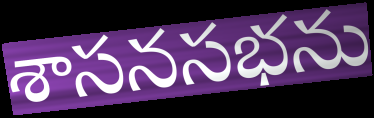
శాసనసభను